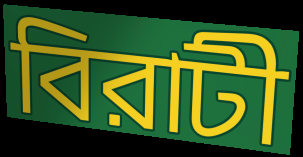
বিরাটী